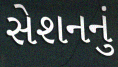
સેશનનું